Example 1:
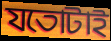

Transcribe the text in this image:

যতোটাই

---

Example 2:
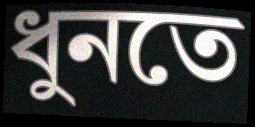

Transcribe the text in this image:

ধুনতে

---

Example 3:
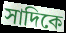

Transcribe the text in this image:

সাদিকে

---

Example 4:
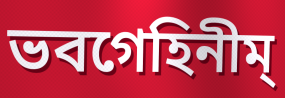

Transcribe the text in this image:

ভবগেহিনীম্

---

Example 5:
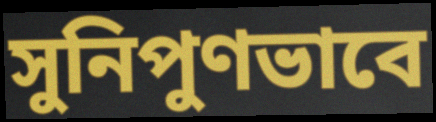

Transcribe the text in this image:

সুনিপুণভাবে